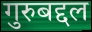
गुरुबद्दल